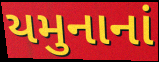
યમુનાનાં